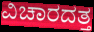
ವಿಚಾರದತ್ತ